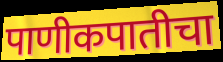
पाणीकपातीचा